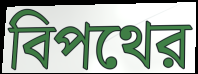
বিপথের